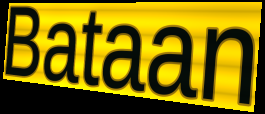
Bataan